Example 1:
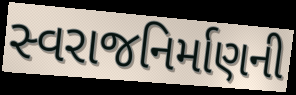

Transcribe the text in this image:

સ્વરાજનિર્માણની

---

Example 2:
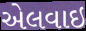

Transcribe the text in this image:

એલવાઇ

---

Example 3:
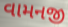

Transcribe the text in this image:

વામનજી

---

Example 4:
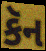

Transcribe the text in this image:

કૅન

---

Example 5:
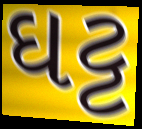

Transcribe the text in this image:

ઘટ્ટ